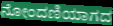
ನೋಂದಣಿಯಾಗದ